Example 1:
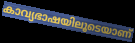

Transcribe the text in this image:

കാവ്യഭാഷയിലൂടെയാണ്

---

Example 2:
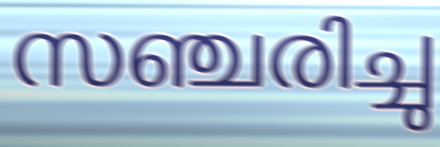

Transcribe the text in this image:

സഞ്ചരിച്ചു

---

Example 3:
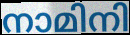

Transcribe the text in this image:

നാമിനി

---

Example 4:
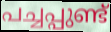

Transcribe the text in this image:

പച്ചപ്പുണ്ട്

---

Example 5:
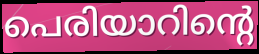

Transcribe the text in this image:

പെരിയാറിന്റെ